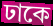
ঢাকে